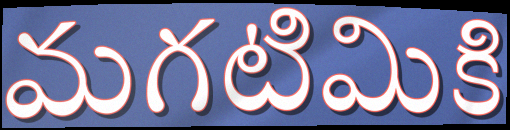
మగటిమికి